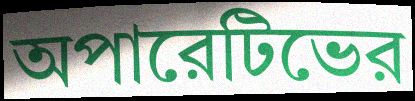
অপারেটিভের